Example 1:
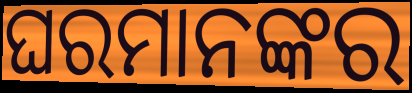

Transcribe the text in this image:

ଘରମାନଙ୍କର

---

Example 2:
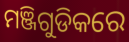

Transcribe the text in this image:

ମଞ୍ଜିଗୁଡିକରେ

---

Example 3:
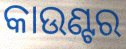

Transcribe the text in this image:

କାଉଣ୍ଟର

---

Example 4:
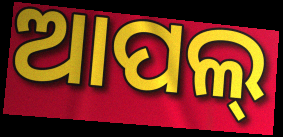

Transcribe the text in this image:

ଆପଲ୍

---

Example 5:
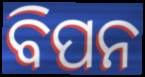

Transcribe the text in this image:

ବିପନ